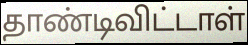
தாண்டிவிட்டாள்